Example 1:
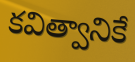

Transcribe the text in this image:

కవిత్వానికే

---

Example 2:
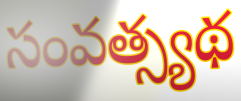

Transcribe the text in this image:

సంవత్స్యథ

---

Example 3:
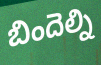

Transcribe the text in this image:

బిందెల్ని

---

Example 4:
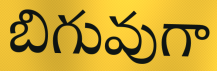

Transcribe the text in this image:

బిగువుగా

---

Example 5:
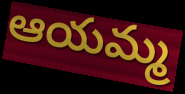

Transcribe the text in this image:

ఆయమ్మ